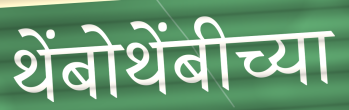
थेंबोथेंबीच्या